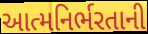
આત્મનિર્ભરતાની